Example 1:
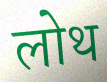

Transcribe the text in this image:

लोथ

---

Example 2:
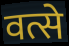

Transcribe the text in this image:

वत्से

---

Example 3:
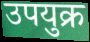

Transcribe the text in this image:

उपयुक्र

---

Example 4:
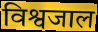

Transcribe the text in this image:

विश्वजाल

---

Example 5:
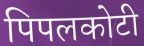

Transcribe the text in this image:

पिपलकोटी